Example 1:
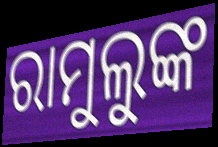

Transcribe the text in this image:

ରାମୁଲୁଙ୍କ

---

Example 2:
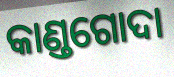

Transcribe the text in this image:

କାଣ୍ଡଗୋଦା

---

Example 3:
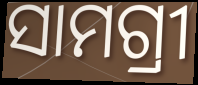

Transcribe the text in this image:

ସାମଗ୍ରୀ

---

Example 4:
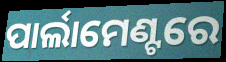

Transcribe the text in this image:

ପାର୍ଲାମେଣ୍ଟରେ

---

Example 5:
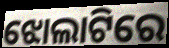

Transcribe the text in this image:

ଝୋଲାଟିରେ